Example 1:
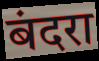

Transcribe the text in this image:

बंदरा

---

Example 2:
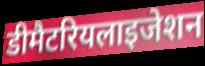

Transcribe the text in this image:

डीमैटरियलाइजेशन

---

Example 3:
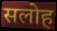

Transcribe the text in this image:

सलोह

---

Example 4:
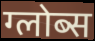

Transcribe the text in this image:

ग्लोब्स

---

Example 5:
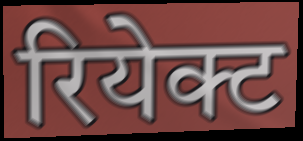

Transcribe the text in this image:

रियेक्ट